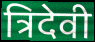
त्रिदेवी